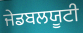
ਜੇਡਬਲਯੂਟੀ